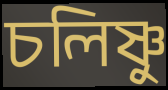
চলিষ্ণু